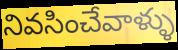
నివసించేవాళ్ళు